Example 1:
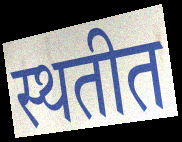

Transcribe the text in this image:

स्थतीत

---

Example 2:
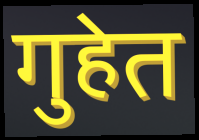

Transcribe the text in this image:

गुहेत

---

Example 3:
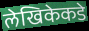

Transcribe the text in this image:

लेखिकेकडे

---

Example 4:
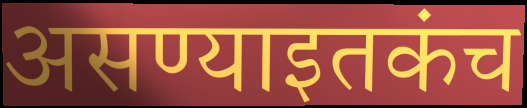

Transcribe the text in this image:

असण्याइतकंच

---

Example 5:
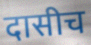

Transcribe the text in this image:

दासीच